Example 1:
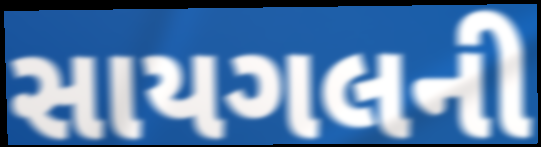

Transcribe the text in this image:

સાયગલની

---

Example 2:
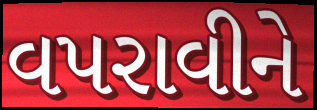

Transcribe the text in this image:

વપરાવીને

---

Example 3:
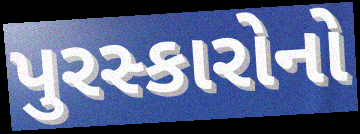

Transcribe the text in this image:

પુરસ્કારોનો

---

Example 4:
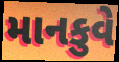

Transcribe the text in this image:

માનકુવે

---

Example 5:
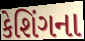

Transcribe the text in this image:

કેશિંગના